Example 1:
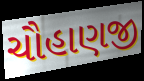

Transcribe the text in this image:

ચૌહાણજી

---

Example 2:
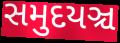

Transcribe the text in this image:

સમુદયઞ્ચ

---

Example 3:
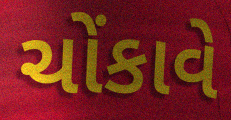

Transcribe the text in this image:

ચોંકાવે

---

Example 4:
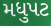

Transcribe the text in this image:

મધુપટ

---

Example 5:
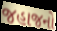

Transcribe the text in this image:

જહાજનો